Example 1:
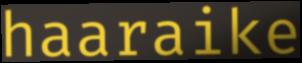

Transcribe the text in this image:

haaraike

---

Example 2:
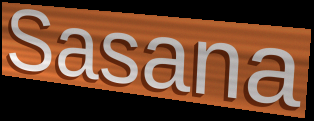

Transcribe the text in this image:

Sasana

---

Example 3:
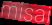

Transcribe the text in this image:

misai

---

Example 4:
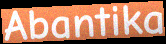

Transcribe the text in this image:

Abantika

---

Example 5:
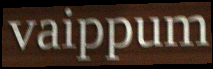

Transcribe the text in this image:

vaippum